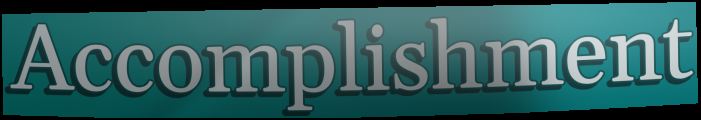
Accomplishment